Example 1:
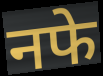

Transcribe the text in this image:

नफे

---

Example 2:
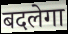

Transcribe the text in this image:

बदलेगा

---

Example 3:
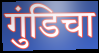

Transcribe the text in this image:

गुंडिचा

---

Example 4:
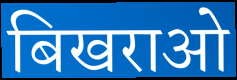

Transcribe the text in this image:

बिखराओ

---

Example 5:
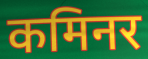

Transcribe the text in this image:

कमिनर